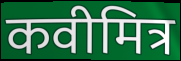
कवीमित्र